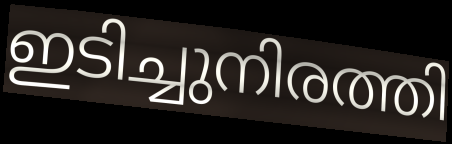
ഇടിച്ചുനിരത്തി